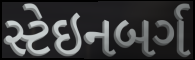
સ્ટેઇનબર્ગ